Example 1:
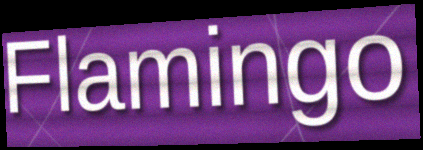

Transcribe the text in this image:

Flamingo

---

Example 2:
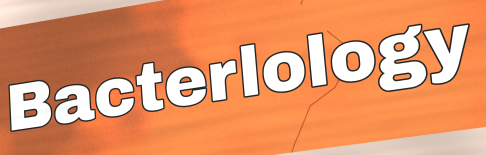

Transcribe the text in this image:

Bacterlology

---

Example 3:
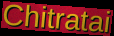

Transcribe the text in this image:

Chitratai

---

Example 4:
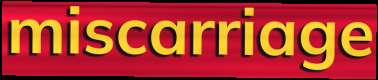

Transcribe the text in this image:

miscarriage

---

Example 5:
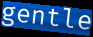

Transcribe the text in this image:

gentle